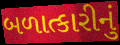
બળાત્કારીનું